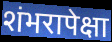
शंभरापेक्षा